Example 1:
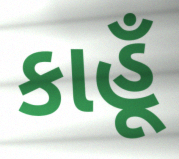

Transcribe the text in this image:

કાહૂઁ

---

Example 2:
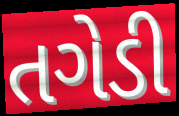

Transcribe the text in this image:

તગેડી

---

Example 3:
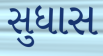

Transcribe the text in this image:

સુધાસ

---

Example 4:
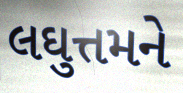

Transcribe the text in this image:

લઘુત્તમને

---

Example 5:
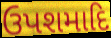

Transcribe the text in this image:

ઉપશમાદિ